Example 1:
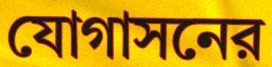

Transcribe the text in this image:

যোগাসনের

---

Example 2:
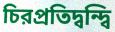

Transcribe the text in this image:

চিরপ্রতিদ্বন্দ্বি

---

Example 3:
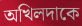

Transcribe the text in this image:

অখিলদাকে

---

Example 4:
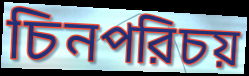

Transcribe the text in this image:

চিনপরিচয়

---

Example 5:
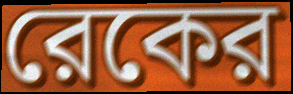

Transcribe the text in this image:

রেকের